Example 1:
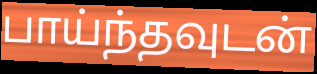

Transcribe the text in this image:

பாய்ந்தவுடன்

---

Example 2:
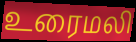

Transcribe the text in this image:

உரைமலி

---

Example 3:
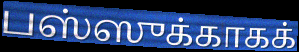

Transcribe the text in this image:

பஸ்ஸுக்காகக்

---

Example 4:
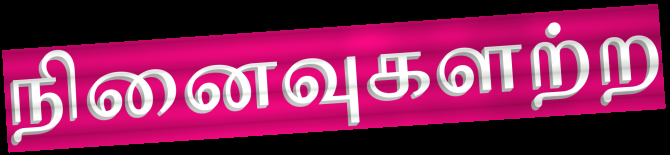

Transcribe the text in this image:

நினைவுகளற்ற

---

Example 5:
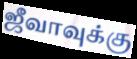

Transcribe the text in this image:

ஜீவாவுக்கு